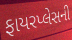
ફાયરપ્લેસની